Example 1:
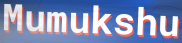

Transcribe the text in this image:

Mumukshu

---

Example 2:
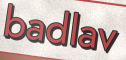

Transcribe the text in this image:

badlav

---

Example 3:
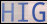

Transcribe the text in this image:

HIG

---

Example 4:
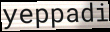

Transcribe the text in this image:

yeppadi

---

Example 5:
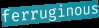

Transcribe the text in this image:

ferruginous